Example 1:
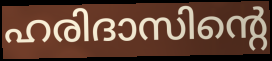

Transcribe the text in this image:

ഹരിദാസിന്റെ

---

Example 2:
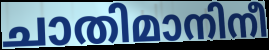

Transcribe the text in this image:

ചാതിമാനിനീ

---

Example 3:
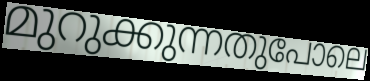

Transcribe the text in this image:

മുറുക്കുന്നതുപോലെ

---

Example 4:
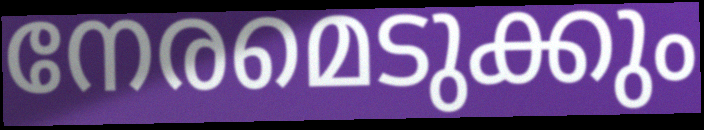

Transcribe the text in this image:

നേരമെടുക്കും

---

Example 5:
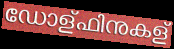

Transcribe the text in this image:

ഡോള്ഫിനുകള്